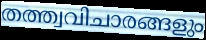
തത്ത്വവിചാരങ്ങളും